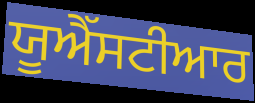
ਯੂਐੱਸਟੀਆਰ